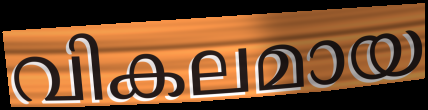
വികലമായ